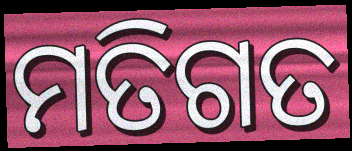
ମତିଗତ